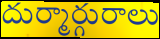
దుర్మార్గురాలు